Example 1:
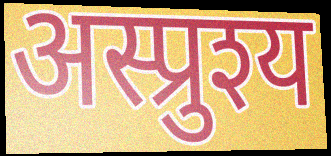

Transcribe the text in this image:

अस्प्रुश्य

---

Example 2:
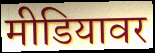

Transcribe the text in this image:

मीडियावर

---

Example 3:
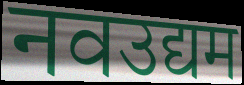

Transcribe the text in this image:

नवउद्यम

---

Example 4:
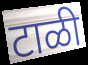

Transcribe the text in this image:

टाळी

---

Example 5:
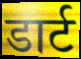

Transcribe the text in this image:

डार्ट